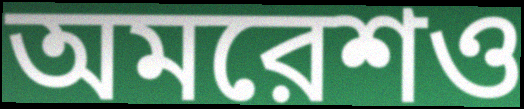
অমরেশও